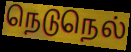
நெடுநெல்